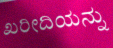
ಖರೀದಿಯನ್ನು